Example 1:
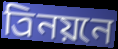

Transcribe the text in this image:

ত্রিনয়নে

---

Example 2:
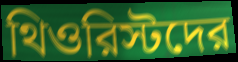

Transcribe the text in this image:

থিওরিস্টদের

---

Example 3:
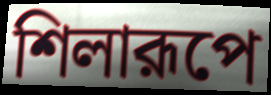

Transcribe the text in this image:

শিলারূপে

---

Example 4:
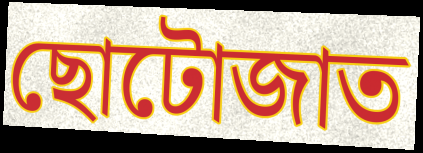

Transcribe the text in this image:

ছোটোজাত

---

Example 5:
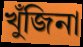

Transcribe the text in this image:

খুঁজিনা